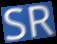
SR